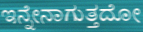
ಇನ್ನೇನಾಗುತ್ತದೋ